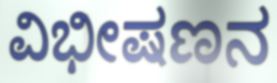
ವಿಭೀಷಣನ